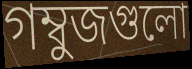
গম্বুজগুলো